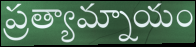
ప్రత్యామ్నాయం